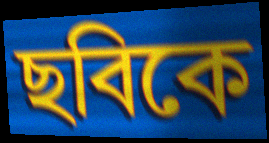
ছবিকে